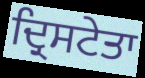
ਦ੍ਰਿਸਟੇਤਾ